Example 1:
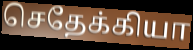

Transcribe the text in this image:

செதேக்கியா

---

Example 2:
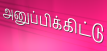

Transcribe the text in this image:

அனுப்பிக்கிட்டு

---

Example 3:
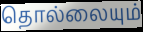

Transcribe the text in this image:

தொல்லையும்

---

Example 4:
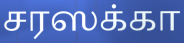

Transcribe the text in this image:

சரஸக்கா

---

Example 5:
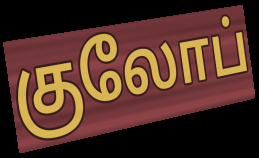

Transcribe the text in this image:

குலோப்